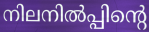
നിലനിൽപ്പിന്റെ